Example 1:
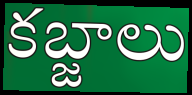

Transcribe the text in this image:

కబ్జాలు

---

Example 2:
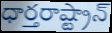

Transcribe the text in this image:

ధార్తరాష్ట్రాన్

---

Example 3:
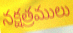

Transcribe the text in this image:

నక్షత్రములు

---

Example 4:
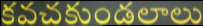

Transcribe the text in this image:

కవచకుండలాలు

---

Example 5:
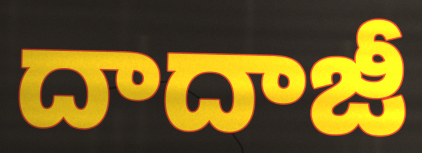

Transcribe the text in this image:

దాదాజీ